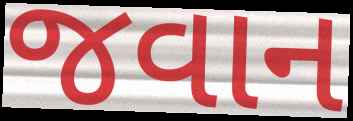
જવાન